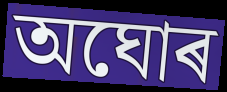
অঘোৰ